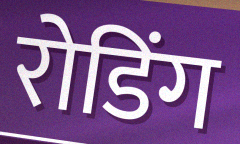
रोडिंग